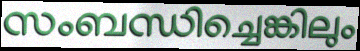
സംബന്ധിച്ചെങ്കിലും